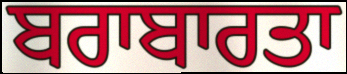
ਬਰਾਬਾਰਤਾ